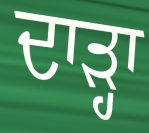
ਦਾੜ੍ਹਾ